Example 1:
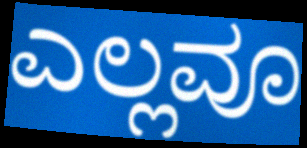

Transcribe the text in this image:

ಎಲ್ಲವೂ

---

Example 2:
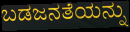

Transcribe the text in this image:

ಬಡಜನತೆಯನ್ನು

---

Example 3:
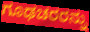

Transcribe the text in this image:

ಗೂಢಚರರನ್ನು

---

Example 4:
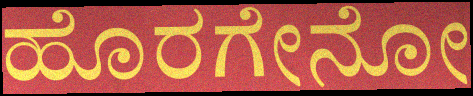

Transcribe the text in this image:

ಹೊರಗೇನೋ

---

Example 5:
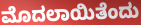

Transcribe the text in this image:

ಮೊದಲಾಯಿತೆಂದು